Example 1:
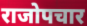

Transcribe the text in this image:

राजोपचार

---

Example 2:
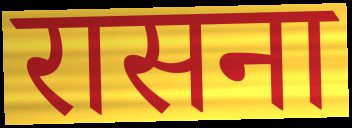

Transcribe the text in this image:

रासना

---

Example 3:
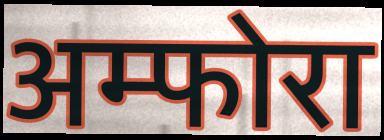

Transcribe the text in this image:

अम्फोरा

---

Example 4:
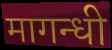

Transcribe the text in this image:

मागन्धी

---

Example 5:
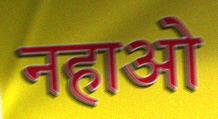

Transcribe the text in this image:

नहाओ